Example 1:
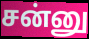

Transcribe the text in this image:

சன்னு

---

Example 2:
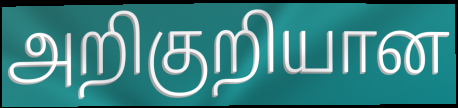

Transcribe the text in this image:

அறிகுறியான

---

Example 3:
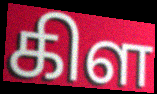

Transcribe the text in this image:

கிள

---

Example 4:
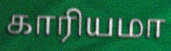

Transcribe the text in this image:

காரியமா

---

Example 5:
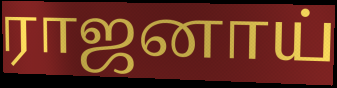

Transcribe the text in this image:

ராஜனாய்